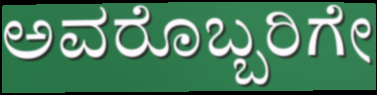
ಅವರೊಬ್ಬರಿಗೇ